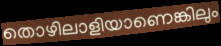
തൊഴിലാളിയാണെങ്കിലും